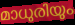
മാധുരിയും